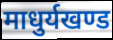
माधुर्यखण्ड